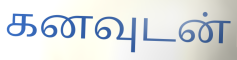
கனவுடன்